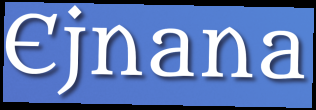
Ejnana